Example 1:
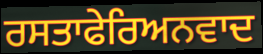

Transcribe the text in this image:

ਰਸਤਾਫੇਰਿਅਨਵਾਦ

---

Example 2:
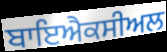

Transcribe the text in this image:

ਬਾਇਐਕਸੀਅਲ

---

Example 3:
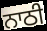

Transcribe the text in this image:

ਨਾਠੀ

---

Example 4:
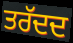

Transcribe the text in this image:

ਤਰੱਦਦ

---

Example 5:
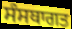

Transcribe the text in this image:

ਸੰਸਥਾਗਤ